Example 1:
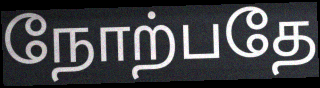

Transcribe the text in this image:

நோற்பதே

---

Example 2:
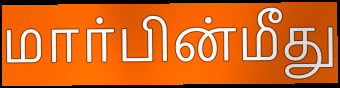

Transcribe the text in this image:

மார்பின்மீது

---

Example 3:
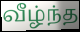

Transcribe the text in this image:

வீழ்ந்த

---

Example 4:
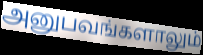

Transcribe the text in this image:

அனுபவங்களாலும்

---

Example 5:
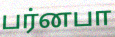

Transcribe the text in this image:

பர்னபா